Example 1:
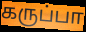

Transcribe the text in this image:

கருப்பா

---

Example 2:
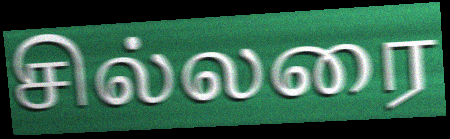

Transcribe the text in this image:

சில்லரை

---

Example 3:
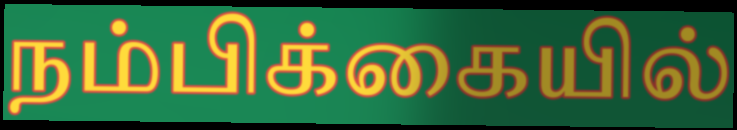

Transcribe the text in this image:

நம்பிக்கையில்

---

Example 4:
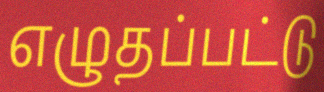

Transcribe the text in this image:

எழுதப்பட்டு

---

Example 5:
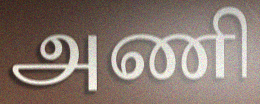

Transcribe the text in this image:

அணி